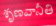
శృణవానీతి